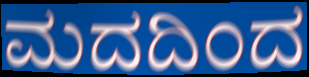
ಮದದಿಂದ